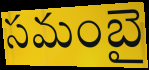
సమంబై